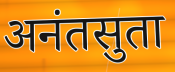
अनंतसुता